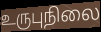
உருபுநிலை